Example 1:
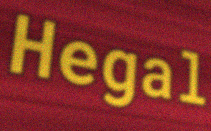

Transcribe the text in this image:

Hegal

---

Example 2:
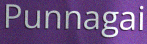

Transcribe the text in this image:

Punnagai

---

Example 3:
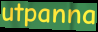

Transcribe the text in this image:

utpanna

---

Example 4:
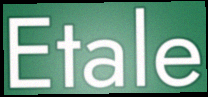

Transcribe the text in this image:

Etale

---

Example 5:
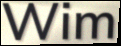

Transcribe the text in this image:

Wim